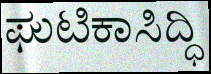
ಘುಟಿಕಾಸಿದ್ಧಿ